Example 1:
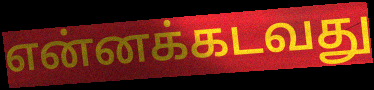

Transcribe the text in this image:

என்னக்கடவது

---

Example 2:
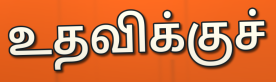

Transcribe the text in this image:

உதவிக்குச்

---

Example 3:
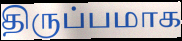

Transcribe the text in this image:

திருப்பமாக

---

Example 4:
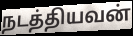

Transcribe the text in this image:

நடத்தியவன்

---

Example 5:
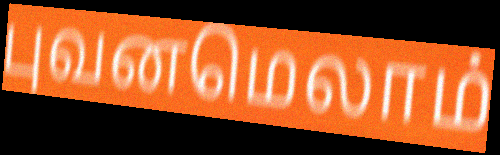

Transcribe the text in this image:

புவனமெலாம்